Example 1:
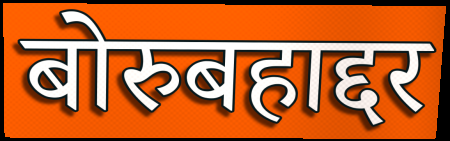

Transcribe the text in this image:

बोरुबहाद्दर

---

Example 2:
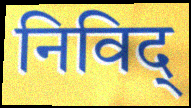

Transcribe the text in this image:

निविद्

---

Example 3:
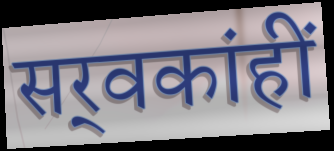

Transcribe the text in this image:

सर्वकांहीं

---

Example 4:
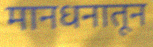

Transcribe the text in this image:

मानधनातून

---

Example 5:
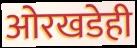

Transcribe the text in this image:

ओरखडेही